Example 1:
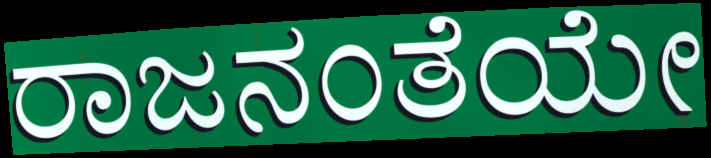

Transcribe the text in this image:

ರಾಜನಂತೆಯೇ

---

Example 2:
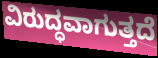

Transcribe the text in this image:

ವಿರುದ್ಧವಾಗುತ್ತದೆ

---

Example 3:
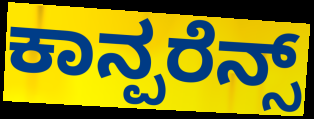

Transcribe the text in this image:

ಕಾನ್ಪರೆನ್ಸ್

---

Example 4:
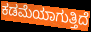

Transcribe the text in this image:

ಕಡಮೆಯಾಗುತ್ತಿದೆ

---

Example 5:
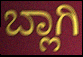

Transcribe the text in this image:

ಬ್ಲಾಗಿ